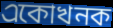
একোখনক